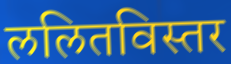
ललितविस्तर